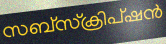
സബ്സ്ക്രിപ്ഷൻ